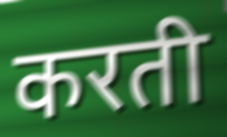
करती